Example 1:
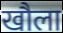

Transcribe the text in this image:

खौला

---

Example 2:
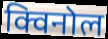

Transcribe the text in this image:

क्विनोल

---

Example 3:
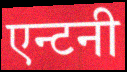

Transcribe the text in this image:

एन्टनी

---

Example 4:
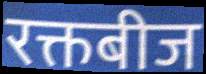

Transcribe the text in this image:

रक्तबीज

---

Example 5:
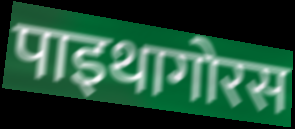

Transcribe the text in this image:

पाइथागोरस